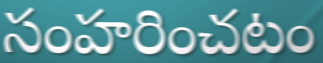
సంహరించటం